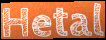
Hetal